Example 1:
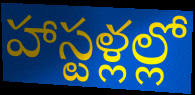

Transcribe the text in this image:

హాస్టళ్లల్లో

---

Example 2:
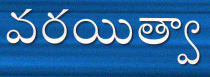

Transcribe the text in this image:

వరయిత్వా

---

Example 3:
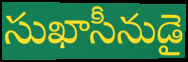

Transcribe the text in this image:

సుఖాసీనుడై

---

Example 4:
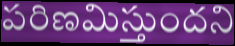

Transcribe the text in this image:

పరిణమిస్తుందని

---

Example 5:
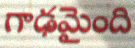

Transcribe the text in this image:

గాఢమైంది